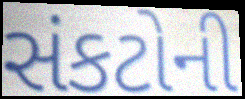
સંકટોની